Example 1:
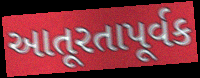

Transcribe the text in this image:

આતૂરતાપૂર્વક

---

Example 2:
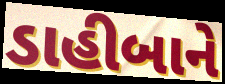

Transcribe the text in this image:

ડાહીબાને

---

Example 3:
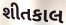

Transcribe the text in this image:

શીતકાલ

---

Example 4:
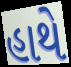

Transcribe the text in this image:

હાથે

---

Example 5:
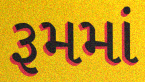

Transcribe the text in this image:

રૂમમાં